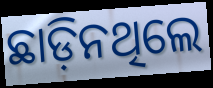
ଛାଡ଼ିନଥିଲେ